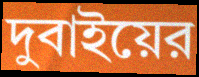
দুবাইয়ের